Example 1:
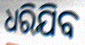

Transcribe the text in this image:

ଧରିଯିବ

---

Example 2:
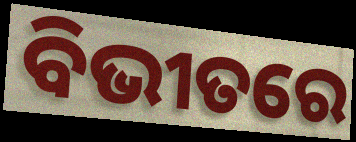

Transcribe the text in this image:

ବିଭୀତରେ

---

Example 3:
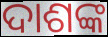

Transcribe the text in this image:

ଦାଶଙ୍କ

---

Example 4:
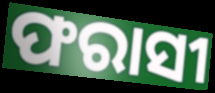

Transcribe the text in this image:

ଫରାସୀ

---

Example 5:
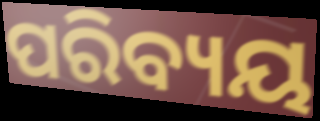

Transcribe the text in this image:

ପରିବ୍ୟୟ